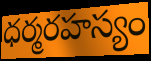
ధర్మరహస్యం